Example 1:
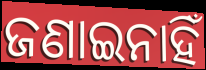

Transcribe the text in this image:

ଜଣାଇନାହିଁ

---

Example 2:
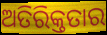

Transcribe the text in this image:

ଅତିରିକ୍ତତାର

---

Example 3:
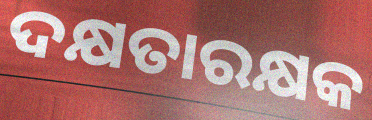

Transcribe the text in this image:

ଦକ୍ଷତାରକ୍ଷକ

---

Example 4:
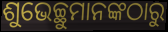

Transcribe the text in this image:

ଶୁଭେଚ୍ଛୁମାନଙ୍କଠାରୁ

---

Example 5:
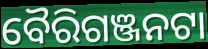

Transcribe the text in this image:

ବୈରିଗଞ୍ଜନଟା